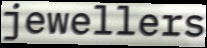
jewellers